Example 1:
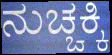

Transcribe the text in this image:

ನುಚ್ಚಕ್ಕಿ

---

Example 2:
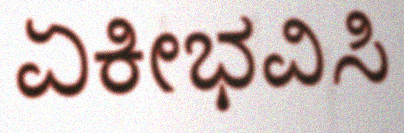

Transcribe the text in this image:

ಏಕೀಭವಿಸಿ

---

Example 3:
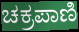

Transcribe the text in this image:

ಚಕ್ರಪಾಣಿ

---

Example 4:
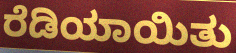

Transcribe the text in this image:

ರೆಡಿಯಾಯಿತು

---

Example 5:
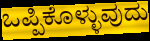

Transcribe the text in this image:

ಒಪ್ಪಿಕೊಳ್ಳುವುದು